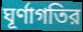
ঘূর্ণাগতির